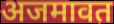
अजमावत